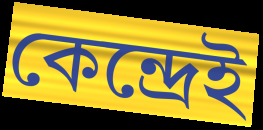
কেন্দ্রেই